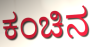
ಕಂಚಿನ